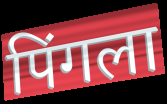
पिंगला